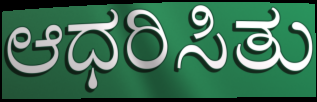
ಆಧರಿಸಿತು